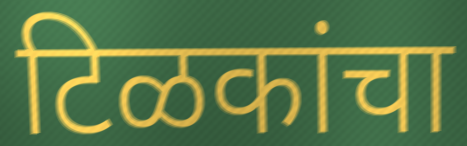
टिळकांचा